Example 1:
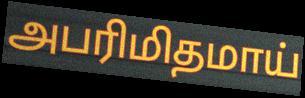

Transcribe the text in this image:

அபரிமிதமாய்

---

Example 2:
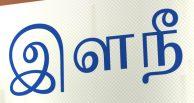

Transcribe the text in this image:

இளநீ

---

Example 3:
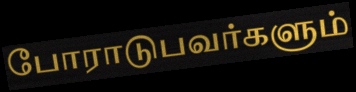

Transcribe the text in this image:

போராடுபவர்களும்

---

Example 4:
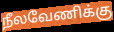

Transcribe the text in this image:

நீலவேணிக்கு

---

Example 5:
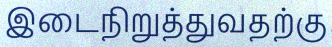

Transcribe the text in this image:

இடைநிறுத்துவதற்கு